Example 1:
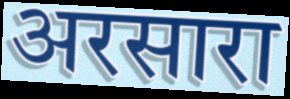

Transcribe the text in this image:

अरसारा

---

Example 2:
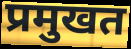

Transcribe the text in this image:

प्रमुखत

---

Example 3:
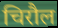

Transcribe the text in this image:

चिरौल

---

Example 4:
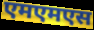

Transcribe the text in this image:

एमएमएस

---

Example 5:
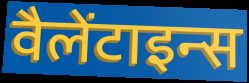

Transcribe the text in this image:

वैलेंटाइन्स